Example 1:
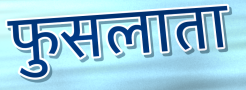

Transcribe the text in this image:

फुसलाता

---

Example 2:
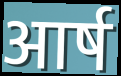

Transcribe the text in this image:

आर्ष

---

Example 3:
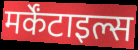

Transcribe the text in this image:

मर्केंटाइल्स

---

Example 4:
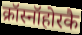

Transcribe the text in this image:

क्रॉस्नॉहोरकै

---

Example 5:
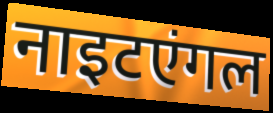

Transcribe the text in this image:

नाइटएंगल